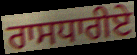
ਰਾਸਧਾਰੀਏ